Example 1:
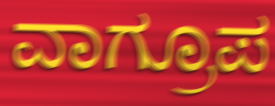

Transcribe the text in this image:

ವಾಗ್ರೂಪ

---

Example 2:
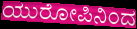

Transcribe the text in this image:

ಯುರೋಪಿನಿಂದ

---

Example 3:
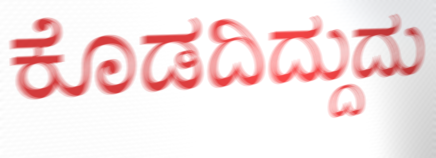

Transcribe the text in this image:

ಕೊಡದಿದ್ದುದು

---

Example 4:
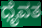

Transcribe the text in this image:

ಧೈವತ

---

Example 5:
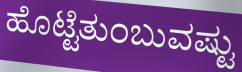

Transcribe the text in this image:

ಹೊಟ್ಟೆತುಂಬುವಷ್ಟು